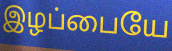
இழப்பையே